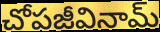
చోపజీవినామ్